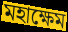
মহাক্ষেম